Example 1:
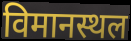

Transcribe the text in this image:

विमानस्थल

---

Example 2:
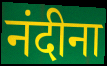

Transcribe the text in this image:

नंदीना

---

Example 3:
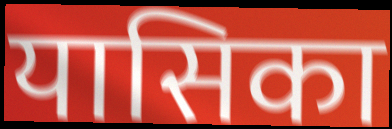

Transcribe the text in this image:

यासिका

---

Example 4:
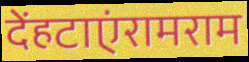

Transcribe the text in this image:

देंहटाएंरामराम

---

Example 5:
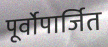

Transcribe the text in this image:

पूर्वोपार्जित